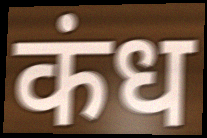
कंध